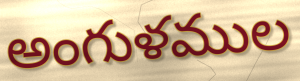
అంగుళముల